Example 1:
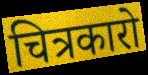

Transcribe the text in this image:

चित्रकारो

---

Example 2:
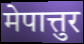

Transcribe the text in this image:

मेपात्तुर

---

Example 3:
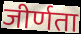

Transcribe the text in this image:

जीर्णता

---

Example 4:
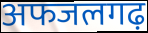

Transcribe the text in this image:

अफजलगढ़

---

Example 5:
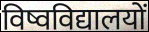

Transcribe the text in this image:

विष्वविद्यालयों